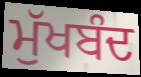
ਮੁੱਖਬੰਦ